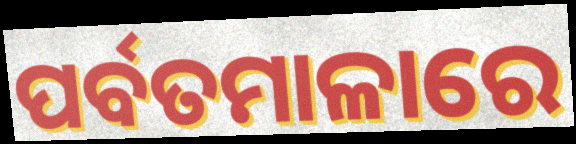
ପର୍ବତମାଳାରେ